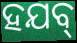
ହଯବ୍